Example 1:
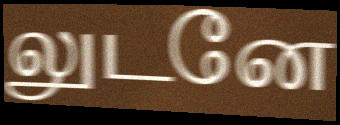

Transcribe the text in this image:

லுடனே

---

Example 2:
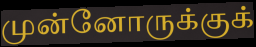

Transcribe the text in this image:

முன்னோருக்குக்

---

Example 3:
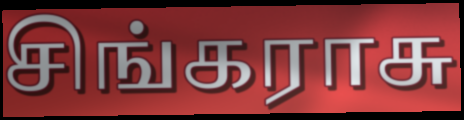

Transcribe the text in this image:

சிங்கராசு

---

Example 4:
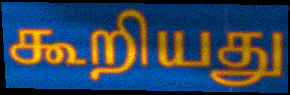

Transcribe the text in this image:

கூறியது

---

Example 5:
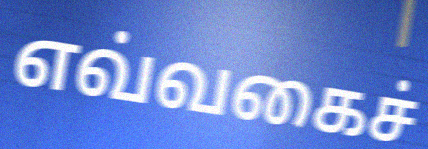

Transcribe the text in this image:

எவ்வகைச்